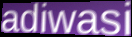
adiwasi